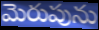
మెరుపును